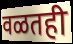
वळतही